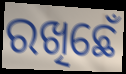
ରଖିଛେଁ